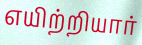
எயிற்றியார்